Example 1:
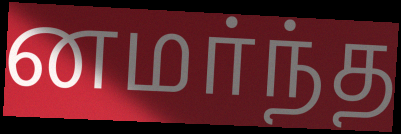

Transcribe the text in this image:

னமர்ந்த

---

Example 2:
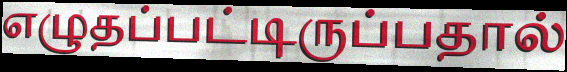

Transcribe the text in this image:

எழுதப்பட்டிருப்பதால்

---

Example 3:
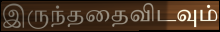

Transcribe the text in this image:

இருந்ததைவிடவும்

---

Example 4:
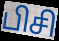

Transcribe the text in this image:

பிசி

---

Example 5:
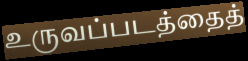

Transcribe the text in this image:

உருவப்படத்தைத்